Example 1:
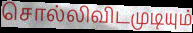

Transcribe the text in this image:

சொல்லிவிடமுடியும்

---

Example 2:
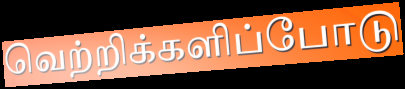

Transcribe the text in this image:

வெற்றிக்களிப்போடு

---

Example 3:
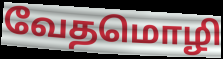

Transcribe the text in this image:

வேதமொழி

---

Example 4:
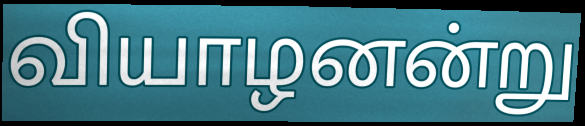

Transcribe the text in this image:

வியாழனன்று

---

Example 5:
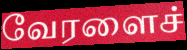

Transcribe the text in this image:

வேரளைச்